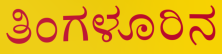
ತಿಂಗಳೂರಿನ